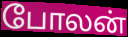
போலன்